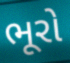
ભૂરો